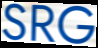
SRG